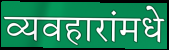
व्यवहारांमधे